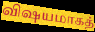
விஷயமாகத்